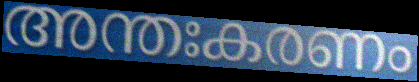
അന്തഃകരണം